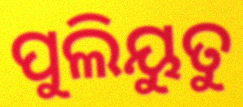
ପୁଲିୟୁତୁ